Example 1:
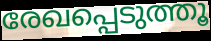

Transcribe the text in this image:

രേഖപ്പെടുത്തൂ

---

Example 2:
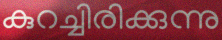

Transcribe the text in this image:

കുറച്ചിരിക്കുന്നു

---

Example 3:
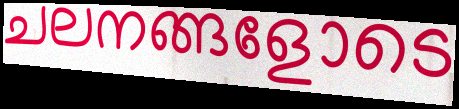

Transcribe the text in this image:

ചലനങ്ങളോടെ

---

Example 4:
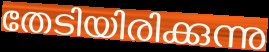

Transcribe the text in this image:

തേടിയിരിക്കുന്നു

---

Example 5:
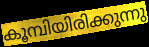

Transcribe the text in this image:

കൂമ്പിയിരിക്കുന്നു